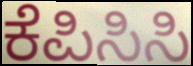
ಕೆಪಿಸಿಸಿ